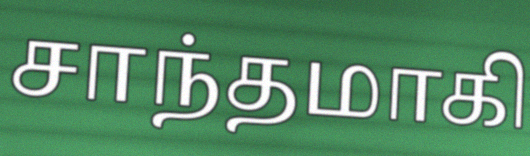
சாந்தமாகி